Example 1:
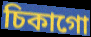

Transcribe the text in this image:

চিকাগো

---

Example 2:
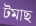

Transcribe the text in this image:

টমাছ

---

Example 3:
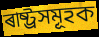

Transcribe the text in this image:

ৰাষ্ট্ৰসমূহক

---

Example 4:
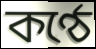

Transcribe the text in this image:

কণ্ঠে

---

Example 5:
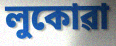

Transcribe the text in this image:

লুকোৱা